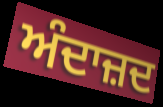
ਅੰਦਾਜ਼ਦ